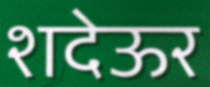
शदेऊर